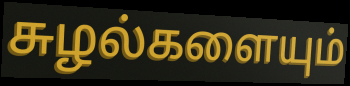
சுழல்களையும்